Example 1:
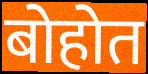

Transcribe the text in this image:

बोहोत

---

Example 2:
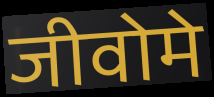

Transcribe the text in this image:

जीवोमे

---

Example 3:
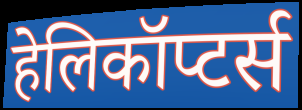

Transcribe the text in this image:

हेलिकॉप्टर्स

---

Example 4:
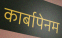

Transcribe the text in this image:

कार्बापेनम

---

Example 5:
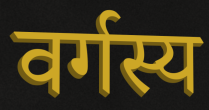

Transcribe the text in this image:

वर्गस्य